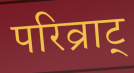
परिव्राट्